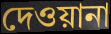
দেওয়ানা